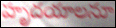
హృదయాలనూ